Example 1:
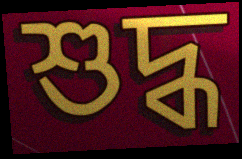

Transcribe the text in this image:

শুদ্ধ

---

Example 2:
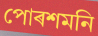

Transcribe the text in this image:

পোৰশমনি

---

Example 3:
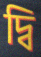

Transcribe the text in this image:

দ্বি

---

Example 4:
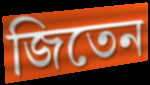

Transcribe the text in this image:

জিতেন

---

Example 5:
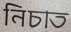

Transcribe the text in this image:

নিচাত